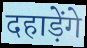
दहाड़ेंगे